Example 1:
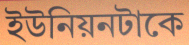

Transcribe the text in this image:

ইউনিয়নটাকে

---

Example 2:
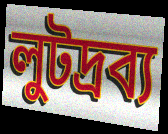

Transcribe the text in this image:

লুটদ্রব্য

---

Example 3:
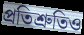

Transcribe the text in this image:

প্রতিশ্রুতিও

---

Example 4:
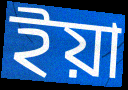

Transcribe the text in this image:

ইয়া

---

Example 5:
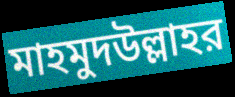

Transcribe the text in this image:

মাহমুদউল্লাহর